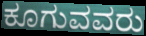
ಕೂಗುವವರು